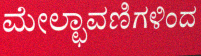
ಮೇಲ್ಛಾವಣಿಗಳಿಂದ